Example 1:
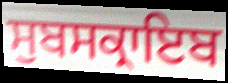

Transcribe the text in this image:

ਸੁਬਸਕ੍ਰਾਇਬ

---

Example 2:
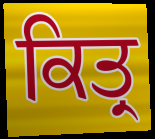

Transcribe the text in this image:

ਕਿਤ੍ਰ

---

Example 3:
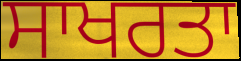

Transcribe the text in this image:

ਸਾਖਰਤਾ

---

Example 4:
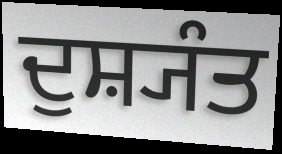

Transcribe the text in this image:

ਦੁਸ਼੍ਯੰਤ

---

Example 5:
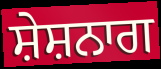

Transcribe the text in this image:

ਸ਼ੇਸ਼ਨਾਗ